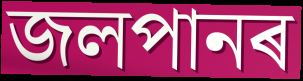
জলপানৰ